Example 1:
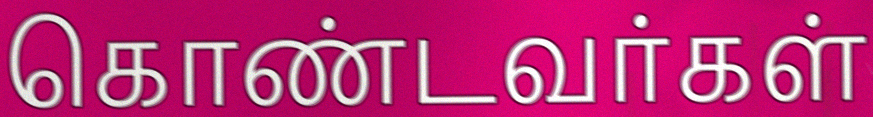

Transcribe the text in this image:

கொண்டவர்கள்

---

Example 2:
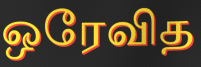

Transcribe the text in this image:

ஒரேவித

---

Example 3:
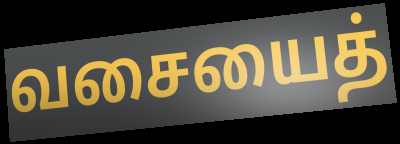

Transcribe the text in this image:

வசையைத்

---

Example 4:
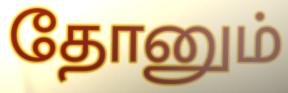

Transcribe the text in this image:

தோனும்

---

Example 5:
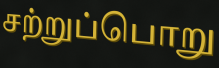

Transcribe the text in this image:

சற்றுப்பொறு